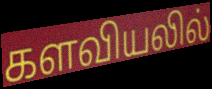
களவியலில்